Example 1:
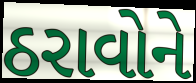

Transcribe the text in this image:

ઠરાવોને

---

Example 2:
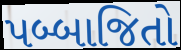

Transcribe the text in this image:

પબ્બાજિતો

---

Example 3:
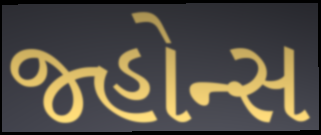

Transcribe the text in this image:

જ્હોન્સ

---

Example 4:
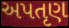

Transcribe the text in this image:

અપતૃણ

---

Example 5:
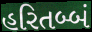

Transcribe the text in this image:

હરિતબ્બં